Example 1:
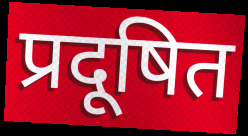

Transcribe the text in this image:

प्रदूषित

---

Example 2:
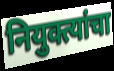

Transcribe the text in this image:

नियुक्त्यांचा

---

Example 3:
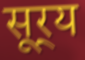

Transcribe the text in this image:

सूर्य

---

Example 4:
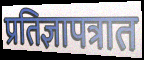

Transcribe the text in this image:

प्रतिज्ञापत्रात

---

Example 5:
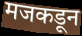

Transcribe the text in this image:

मजकडून